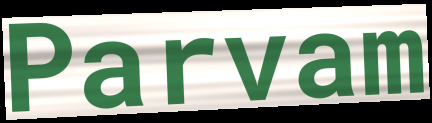
Parvam